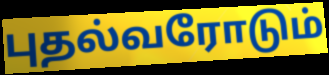
புதல்வரோடும்